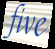
five